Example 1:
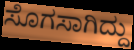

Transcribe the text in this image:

ಸೊಗಸಾಗಿದ್ದು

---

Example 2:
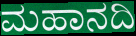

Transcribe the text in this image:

ಮಹಾನದಿ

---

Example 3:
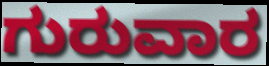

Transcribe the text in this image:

ಗುರುವಾರ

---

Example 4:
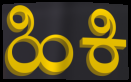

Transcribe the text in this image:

ಹಿಕಿ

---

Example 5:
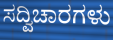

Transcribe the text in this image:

ಸದ್ವಿಚಾರಗಳು